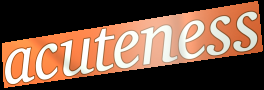
acuteness